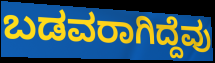
ಬಡವರಾಗಿದ್ದೆವು